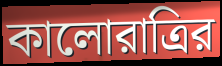
কালোরাত্রির